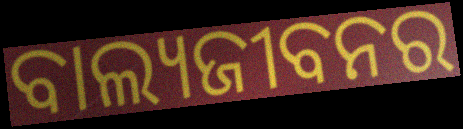
ବାଲ୍ୟଜୀବନର